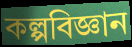
কল্পবিজ্ঞান